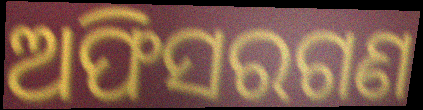
ଅଫିସରଗଣ